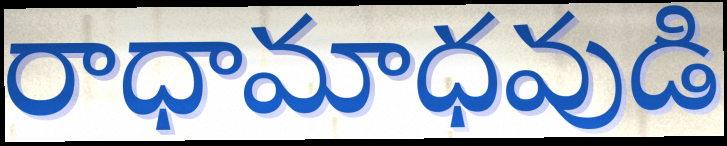
రాధామాధవుడి